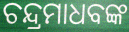
ଚନ୍ଦ୍ରମାଧବଙ୍କ